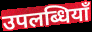
उपलब्धियाँ